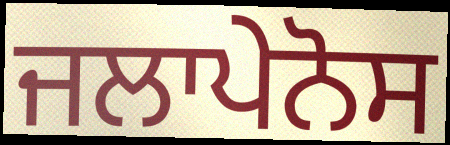
ਜਲਾਪੇਨੋਸ